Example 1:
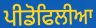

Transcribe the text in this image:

ਪੀਡੋਫਿਲੀਆ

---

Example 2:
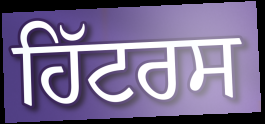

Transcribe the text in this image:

ਹਿੱਟਰਸ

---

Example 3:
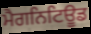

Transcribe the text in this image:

ਮੈਗਨਿਟਿਊਡ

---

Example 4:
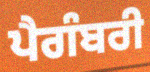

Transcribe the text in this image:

ਪੈਗੰਬਰੀ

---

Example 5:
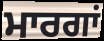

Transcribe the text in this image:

ਮਾਰਗਾਂ